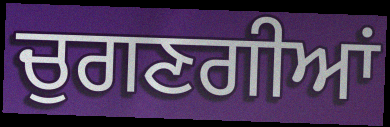
ਚੁਗਣਗੀਆਂ